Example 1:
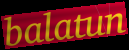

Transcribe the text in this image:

balatun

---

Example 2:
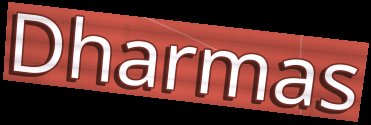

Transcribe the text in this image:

Dharmas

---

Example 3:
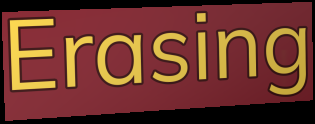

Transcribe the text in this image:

Erasing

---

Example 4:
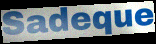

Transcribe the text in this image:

Sadeque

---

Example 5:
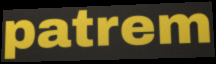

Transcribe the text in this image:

patrem